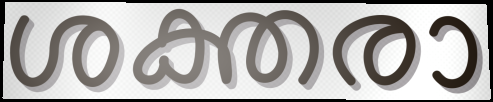
ശക്തരാ